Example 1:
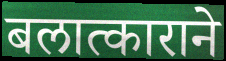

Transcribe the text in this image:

बलात्काराने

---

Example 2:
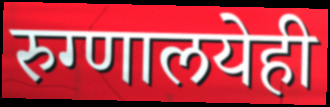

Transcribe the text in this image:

रुग्णालयेही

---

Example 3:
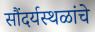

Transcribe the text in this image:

सौंदर्यस्थळांचे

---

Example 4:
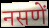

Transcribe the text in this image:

नसणें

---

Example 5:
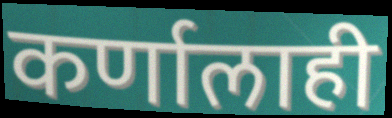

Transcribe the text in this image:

कर्णालाही